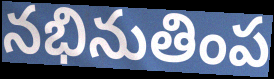
నభినుతింప